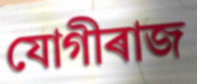
যোগীৰাজ